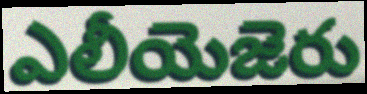
ఎలీయెజెరు